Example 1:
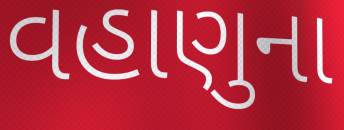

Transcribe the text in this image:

વહાણુના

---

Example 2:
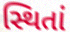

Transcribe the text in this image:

સ્થિતાં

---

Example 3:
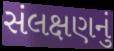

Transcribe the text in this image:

સંલક્ષણનું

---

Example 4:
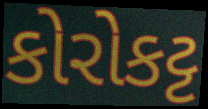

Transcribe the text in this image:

કોરોકટ્ટ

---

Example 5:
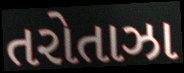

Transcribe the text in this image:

તરોતાઝા